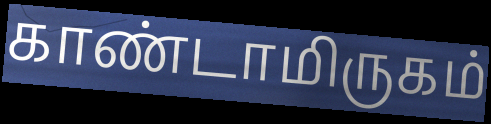
காண்டாமிருகம்